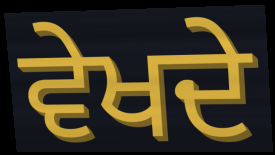
ਵੇਖਦੇ